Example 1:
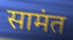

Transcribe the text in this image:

सामंत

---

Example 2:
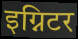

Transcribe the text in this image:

इग्निटर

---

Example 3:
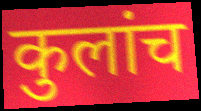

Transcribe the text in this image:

कुलांच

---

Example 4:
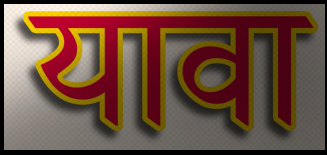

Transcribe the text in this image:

यावा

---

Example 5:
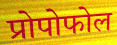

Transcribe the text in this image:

प्रोपोफोल